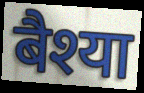
बैश्या